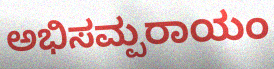
ಅಭಿಸಮ್ಪರಾಯಂ